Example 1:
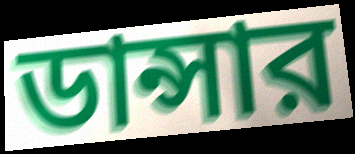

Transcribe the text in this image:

ডান্সার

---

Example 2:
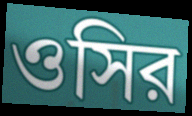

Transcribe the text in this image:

ওসির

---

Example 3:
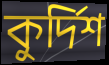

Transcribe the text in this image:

কুর্দিশ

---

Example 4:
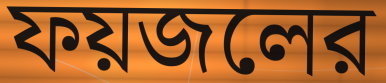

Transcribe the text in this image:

ফয়জলের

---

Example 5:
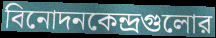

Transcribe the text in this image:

বিনোদনকেন্দ্রগুলোর